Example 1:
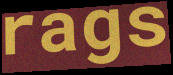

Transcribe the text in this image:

rags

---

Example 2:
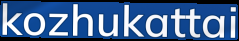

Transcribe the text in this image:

kozhukattai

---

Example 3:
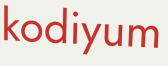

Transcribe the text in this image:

kodiyum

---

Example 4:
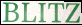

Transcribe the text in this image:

BLITZ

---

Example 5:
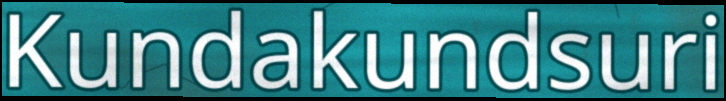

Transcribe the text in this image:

Kundakundsuri